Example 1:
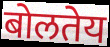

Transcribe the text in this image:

बोलतेय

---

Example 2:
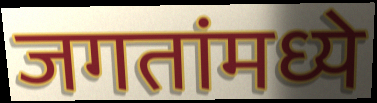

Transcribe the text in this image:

जगतांमध्ये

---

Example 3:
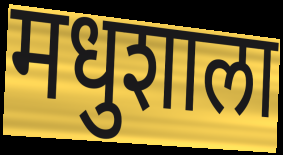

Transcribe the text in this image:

मधुशाला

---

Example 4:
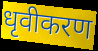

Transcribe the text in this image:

धृवीकरण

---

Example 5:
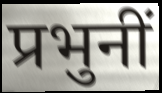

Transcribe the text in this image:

प्रभुनीं